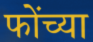
फोंच्या